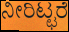
ನೀರಿಟ್ಟರೆ